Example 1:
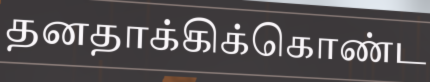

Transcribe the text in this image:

தனதாக்கிக்கொண்ட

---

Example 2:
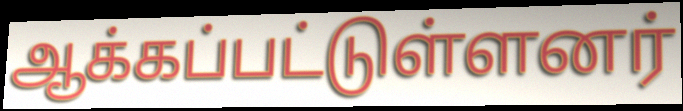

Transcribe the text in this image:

ஆக்கப்பட்டுள்ளனர்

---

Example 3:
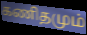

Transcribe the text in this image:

கணிதமும்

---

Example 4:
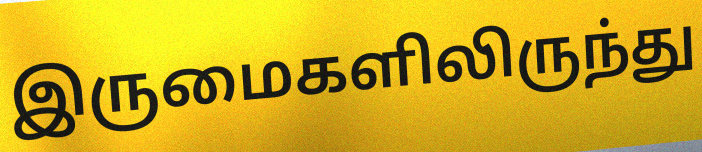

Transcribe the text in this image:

இருமைகளிலிருந்து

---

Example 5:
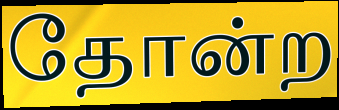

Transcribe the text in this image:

தோன்ற